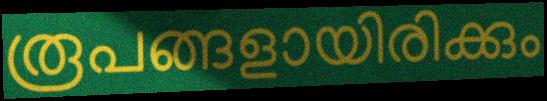
രൂപങ്ങളായിരിക്കും